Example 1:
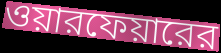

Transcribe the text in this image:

ওয়ারফেয়ারের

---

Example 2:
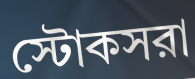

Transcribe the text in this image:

স্টোকসরা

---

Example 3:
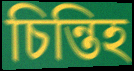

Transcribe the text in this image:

চিন্তিহ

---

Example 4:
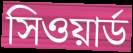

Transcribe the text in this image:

সিওয়ার্ড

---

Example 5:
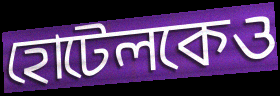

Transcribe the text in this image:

হোটেলকেও